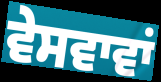
ਵੇਸਵਾਵਾਂ